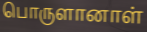
பொருளானாள்